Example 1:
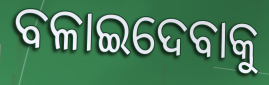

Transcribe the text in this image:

ବଳାଇଦେବାକୁ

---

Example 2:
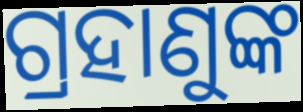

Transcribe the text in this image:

ଗ୍ରହାଣୁଙ୍କ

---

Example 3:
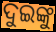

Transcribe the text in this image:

ଦୁଇଙ୍କୁ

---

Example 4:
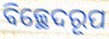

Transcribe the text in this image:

ବିଚ୍ଛେଦରୂପ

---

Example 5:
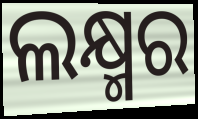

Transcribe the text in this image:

ଲକ୍ଷ୍ମର